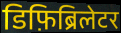
डिफ़िब्रिलेटर